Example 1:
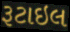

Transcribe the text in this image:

રૂટાઇલ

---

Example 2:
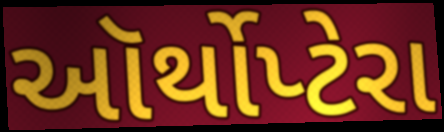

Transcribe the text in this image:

ઑર્થોપ્ટેરા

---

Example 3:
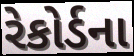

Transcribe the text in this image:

રેકોર્ડના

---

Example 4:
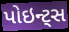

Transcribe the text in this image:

પોઇન્ટ્સ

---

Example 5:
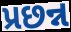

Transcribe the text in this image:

પ્રછન્ન